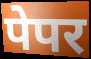
पेपर